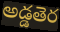
అడ్డతెర